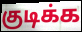
குடிக்க